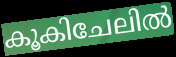
കൂകിചേലിൽ